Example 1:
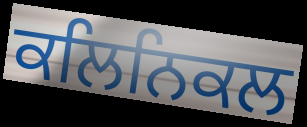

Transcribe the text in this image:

ਕਲਿਨਿਕਲ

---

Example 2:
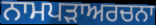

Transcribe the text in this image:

ਨਾਮਪੜਾਅਰਚਨਾ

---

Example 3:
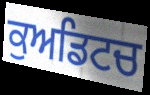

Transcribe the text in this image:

ਕੁਅਡਿਟਚ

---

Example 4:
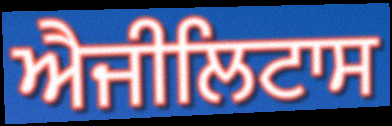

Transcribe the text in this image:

ਐਜੀਲਿਟਾਸ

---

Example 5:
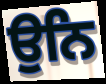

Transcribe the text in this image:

ਉਨਿ